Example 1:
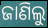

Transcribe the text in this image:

ଜାଣିଲୁ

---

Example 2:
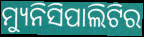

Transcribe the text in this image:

ମ୍ୟୁନିସିପାଲିଟିର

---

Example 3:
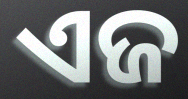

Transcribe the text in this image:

ଏଜ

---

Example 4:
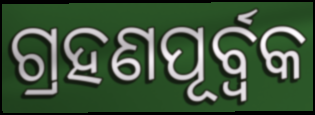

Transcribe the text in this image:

ଗ୍ରହଣପୂର୍ବ୍ବକ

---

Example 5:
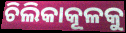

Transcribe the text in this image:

ଚିଲିକାକୂଳକୁ